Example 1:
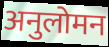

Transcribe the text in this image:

अनुलोमन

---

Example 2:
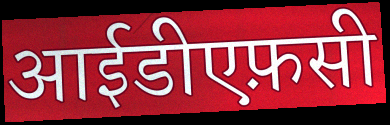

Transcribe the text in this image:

आईडीएफ़सी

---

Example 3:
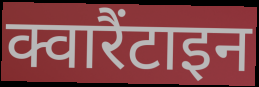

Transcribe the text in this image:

क्वारैंटाइन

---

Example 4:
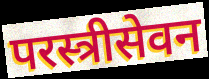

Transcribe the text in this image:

परस्त्रीसेवन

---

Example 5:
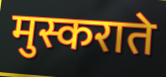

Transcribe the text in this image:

मुस्‍कराते